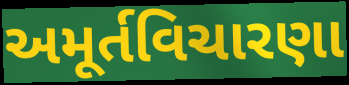
અમૂર્તવિચારણા